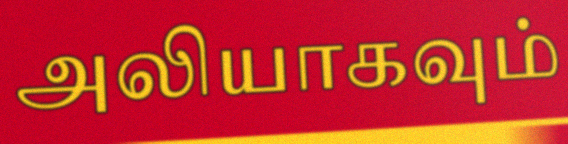
அலியாகவும்